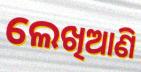
ଲେଖିଆଣି